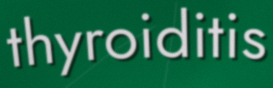
thyroiditis